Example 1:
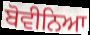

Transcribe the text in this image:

ਬੋਵੀਨਿਆ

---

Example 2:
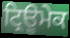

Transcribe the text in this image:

ਟ੍ਰਿਊਮੇਕ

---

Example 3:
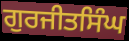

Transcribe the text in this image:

ਗੁਰਜੀਤਸਿੰਘ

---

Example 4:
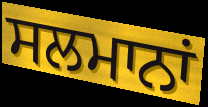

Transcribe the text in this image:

ਸਲਮਾਨਾਂ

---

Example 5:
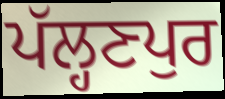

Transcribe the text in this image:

ਪੱਲ੍ਹਣਪੁਰ